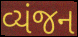
વ્યંજન